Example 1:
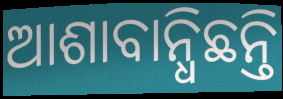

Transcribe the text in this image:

ଆଶାବାନ୍ଧିଛନ୍ତି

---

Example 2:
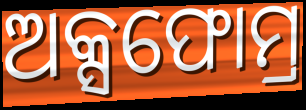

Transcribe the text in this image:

ଅକ୍ସଫୋମ୍ର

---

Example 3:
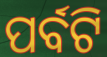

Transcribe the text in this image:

ପର୍ବଟି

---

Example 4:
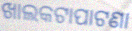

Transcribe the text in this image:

ଖାଲକଟାପାଟଣା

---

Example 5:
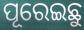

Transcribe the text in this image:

ପୂରେଇଛୁ